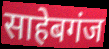
साहेबगंज